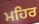
ਮਹਿਰ